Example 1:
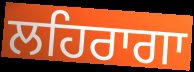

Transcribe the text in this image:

ਲਹਿਰਾਗਾ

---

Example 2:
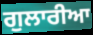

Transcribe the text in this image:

ਗੁਲਾਰੀਆ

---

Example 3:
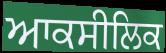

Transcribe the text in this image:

ਆਕਸੀਲਿਕ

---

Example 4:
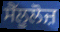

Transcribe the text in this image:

ਸੈੱਲੂਲੋਜ਼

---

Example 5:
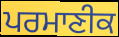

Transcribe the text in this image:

ਪਰਮਾਣੀਕ